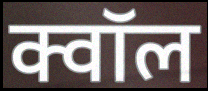
क्वॉल